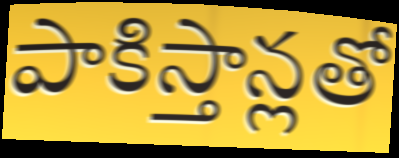
పాకిస్తాన్లతో